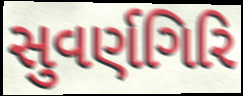
સુવર્ણગિરિ